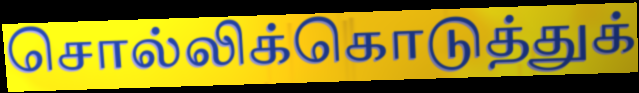
சொல்லிக்கொடுத்துக்